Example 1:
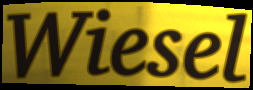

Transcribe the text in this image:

Wiesel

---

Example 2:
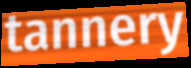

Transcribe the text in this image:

tannery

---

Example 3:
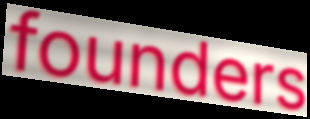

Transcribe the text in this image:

founders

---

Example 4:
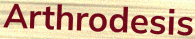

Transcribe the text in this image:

Arthrodesis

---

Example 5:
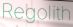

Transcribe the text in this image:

Regolith